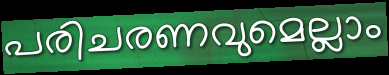
പരിചരണവുമെല്ലാം